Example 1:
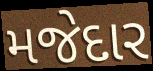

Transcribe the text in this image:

મજેદાર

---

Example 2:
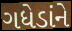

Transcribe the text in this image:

ગધેડાંને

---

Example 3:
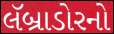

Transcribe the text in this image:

લૅબ્રાડોરનો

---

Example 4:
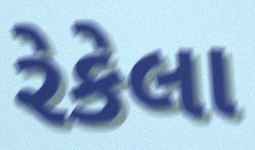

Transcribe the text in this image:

રેકેલા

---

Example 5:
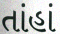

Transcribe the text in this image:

તાંહાં